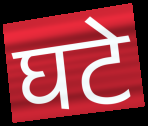
घटे